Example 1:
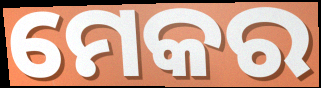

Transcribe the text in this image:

ମେକର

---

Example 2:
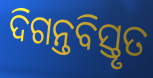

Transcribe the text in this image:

ଦିଗନ୍ତବିସ୍ତୃତ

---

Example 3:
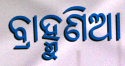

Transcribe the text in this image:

ବ୍ରାହ୍ମୁଣିଆ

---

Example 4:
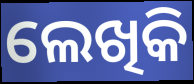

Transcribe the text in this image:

ଲେଖିକି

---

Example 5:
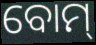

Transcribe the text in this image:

ବୋମ୍